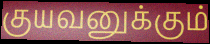
குயவனுக்கும்